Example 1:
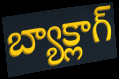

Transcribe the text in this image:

బ్యాక్లాగ్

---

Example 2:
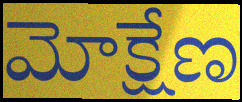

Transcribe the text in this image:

మోక్షేణ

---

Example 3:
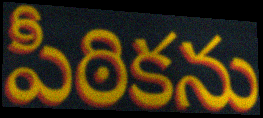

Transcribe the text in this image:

పీఠికను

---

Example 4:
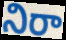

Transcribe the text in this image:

నిరా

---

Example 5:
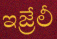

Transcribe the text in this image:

ఇజ్రేలీ